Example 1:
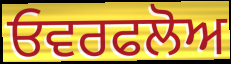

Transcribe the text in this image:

ਓਵਰਫਲੋਅ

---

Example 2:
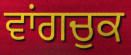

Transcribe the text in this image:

ਵਾਂਗਚੁਕ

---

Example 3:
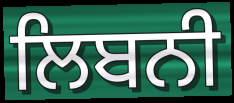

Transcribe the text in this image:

ਲਿਬਨੀ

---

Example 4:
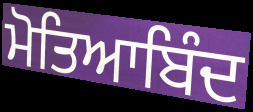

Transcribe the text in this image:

ਮੋਤਿਆਬਿੰਦ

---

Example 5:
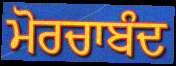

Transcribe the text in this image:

ਮੋਰਚਾਬੰਦ